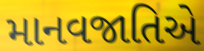
માનવજાતિએ